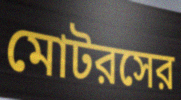
মোটরসের